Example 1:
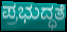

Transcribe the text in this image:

ಪ್ರಭುದ್ಧತೆ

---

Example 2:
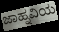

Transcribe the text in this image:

ಜಾಹ್ನವಿಯ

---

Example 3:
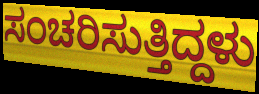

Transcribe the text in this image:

ಸಂಚರಿಸುತ್ತಿದ್ದಳು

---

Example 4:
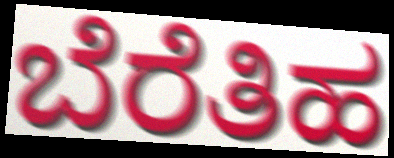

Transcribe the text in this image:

ಬೆರೆತಿಹ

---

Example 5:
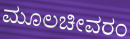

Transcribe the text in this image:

ಮೂಲಚೀವರಂ